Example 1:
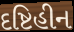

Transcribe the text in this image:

દષ્ટિહીન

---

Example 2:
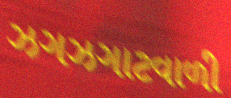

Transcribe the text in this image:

ઝગઝગાટવાળી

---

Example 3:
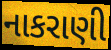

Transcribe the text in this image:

નાકરાણી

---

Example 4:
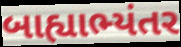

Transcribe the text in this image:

બાહ્યાભ્યંતર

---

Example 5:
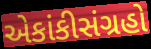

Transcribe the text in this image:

એકાંકીસંગ્રહો